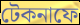
টেকনাফে